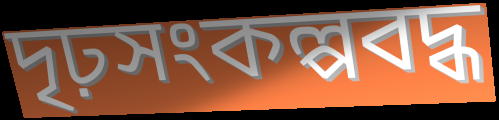
দৃঢ়সংকল্পবদ্ধ